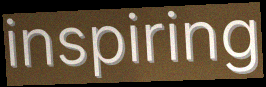
inspiring